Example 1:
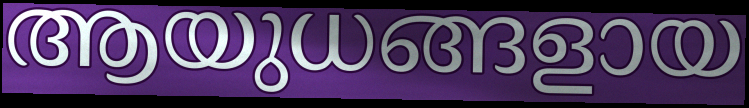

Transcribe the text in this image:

ആയുധങ്ങളായ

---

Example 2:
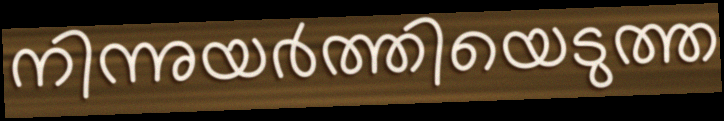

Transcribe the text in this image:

നിന്നുയർത്തിയെടുത്ത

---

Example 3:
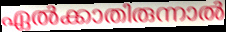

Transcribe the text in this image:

ഏൽക്കാതിരുന്നാൽ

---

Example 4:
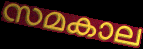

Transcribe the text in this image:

സമകാല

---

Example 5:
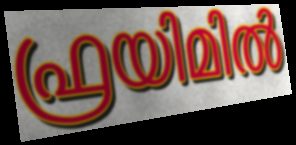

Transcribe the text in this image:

ഫ്രയിമിൽ